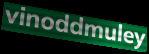
vinoddmuley